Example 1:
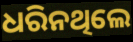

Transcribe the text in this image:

ଧରିନଥିଲେ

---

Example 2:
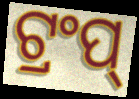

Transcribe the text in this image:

ଟ୍ରଂପ୍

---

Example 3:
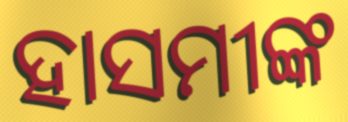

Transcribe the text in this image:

ହାସମୀଙ୍କ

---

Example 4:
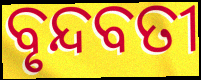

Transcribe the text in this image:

ବୃନ୍ଦବତୀ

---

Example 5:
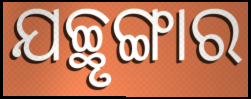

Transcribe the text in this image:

ଯଚ୍ଛୃଙ୍ଗାର